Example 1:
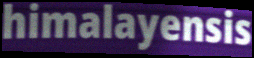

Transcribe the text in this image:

himalayensis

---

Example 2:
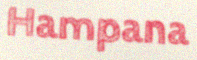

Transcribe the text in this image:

Hampana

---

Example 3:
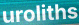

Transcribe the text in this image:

uroliths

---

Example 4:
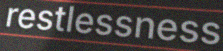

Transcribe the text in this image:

restlessness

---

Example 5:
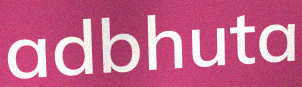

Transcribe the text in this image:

adbhuta